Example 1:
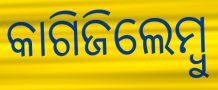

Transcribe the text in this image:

କାଗିଜିଲେମ୍ବୁ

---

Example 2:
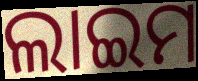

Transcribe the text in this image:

ଲାଇମ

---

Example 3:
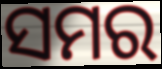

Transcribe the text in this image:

ସମର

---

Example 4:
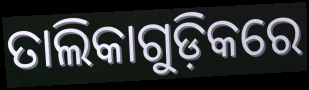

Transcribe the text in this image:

ତାଲିକାଗୁଡ଼ିକରେ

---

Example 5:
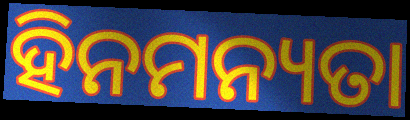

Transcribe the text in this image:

ହିନମନ୍ୟତା